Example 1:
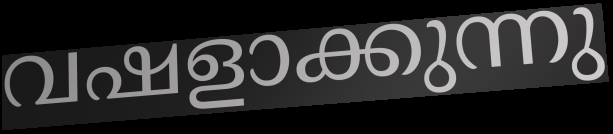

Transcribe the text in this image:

വഷളാക്കുന്നു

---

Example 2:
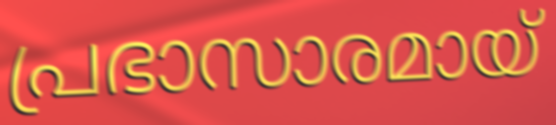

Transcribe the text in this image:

പ്രഭാസാരമായ്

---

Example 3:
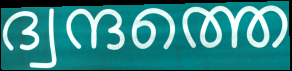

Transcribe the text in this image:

ദ്വന്ദത്തെ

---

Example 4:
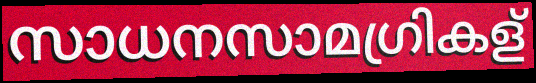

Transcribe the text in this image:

സാധനസാമഗ്രികള്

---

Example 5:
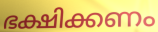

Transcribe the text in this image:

ഭക്ഷിക്കണം